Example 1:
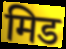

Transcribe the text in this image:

मिड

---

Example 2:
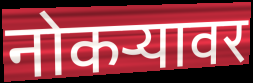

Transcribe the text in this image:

नोकऱ्यावर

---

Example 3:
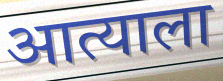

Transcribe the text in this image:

आत्याला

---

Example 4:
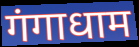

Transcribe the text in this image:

गंगाधाम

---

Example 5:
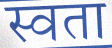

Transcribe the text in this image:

स्वता